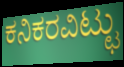
ಕನಿಕರವಿಟ್ಟು